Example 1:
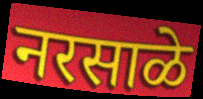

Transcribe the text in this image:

नरसाळे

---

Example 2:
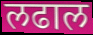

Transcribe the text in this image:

लढाल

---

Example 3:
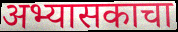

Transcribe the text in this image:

अभ्यासकाचा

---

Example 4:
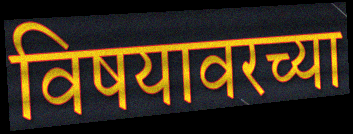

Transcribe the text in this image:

विषयावरच्या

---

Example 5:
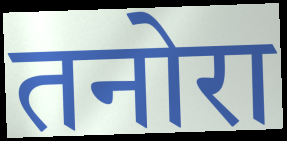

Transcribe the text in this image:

तनोरा